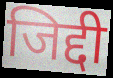
जिद्दी